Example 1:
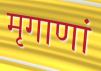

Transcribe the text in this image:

मृगाणां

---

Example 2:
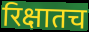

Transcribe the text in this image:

रिक्षातच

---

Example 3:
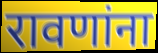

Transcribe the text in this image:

रावणांना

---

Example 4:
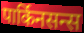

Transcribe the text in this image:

पार्किनसन्स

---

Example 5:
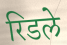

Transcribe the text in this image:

रिडले